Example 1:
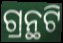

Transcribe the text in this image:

ଗ୍ରନ୍ଥଟି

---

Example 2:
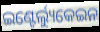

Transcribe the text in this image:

ଇଣ୍ଟେର୍ଲ୍ୟୁକେଇନ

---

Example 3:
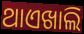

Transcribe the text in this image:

ଥାଏଖାଲି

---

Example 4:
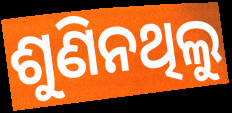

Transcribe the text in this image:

ଶୁଣିନଥିଲୁ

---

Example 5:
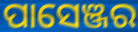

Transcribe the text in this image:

ପାସେଞ୍ଜର